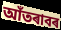
আঁতৰাবৰ